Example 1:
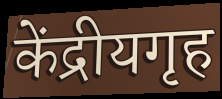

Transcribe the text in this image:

केंद्रीयगृह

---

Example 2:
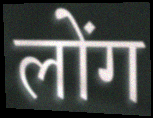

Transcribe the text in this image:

लोंग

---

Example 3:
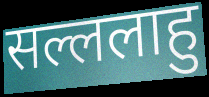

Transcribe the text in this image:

सल्ललाहु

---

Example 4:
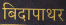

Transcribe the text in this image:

बिदापाथर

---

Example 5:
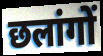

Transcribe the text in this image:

छलांगों